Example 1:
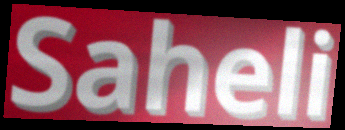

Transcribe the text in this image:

Saheli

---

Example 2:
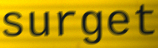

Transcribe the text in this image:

surget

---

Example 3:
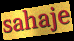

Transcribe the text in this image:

sahaje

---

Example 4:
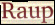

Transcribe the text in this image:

Raup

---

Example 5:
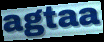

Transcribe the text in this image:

agtaa